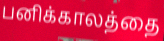
பனிக்காலத்தை